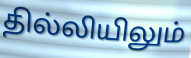
தில்லியிலும்